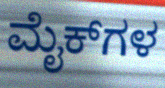
ಮೈಕ್‌ಗಳ